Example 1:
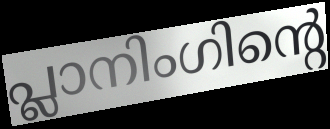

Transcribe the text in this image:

പ്ലാനിംഗിന്റെ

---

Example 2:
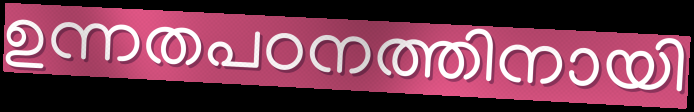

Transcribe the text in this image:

ഉന്നതപഠനത്തിനായി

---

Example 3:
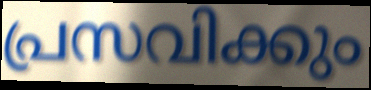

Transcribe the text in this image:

പ്രസവിക്കും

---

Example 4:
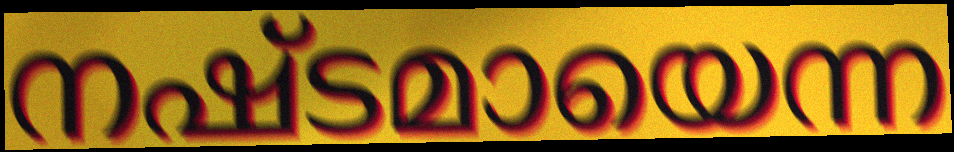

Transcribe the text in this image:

നഷ്ടമായെന്ന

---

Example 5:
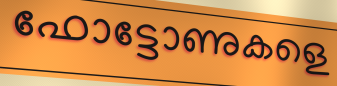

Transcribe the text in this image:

ഫോട്ടോണുകളെ